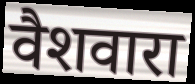
वैशवारा